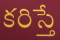
కరిస్తే